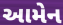
આમેન